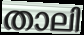
താലി